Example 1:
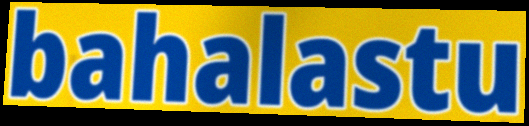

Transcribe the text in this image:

bahalastu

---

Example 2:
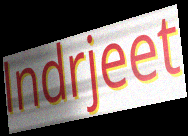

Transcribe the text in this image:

Indrjeet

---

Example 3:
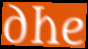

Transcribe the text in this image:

dhe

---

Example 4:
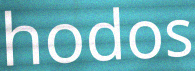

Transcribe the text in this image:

hodos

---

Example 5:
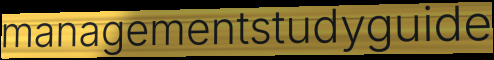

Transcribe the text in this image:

managementstudyguide